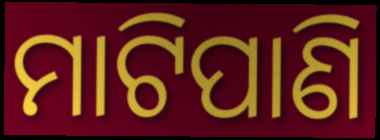
ମାଟିପାଣି